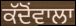
ਕੱਦੋਂਵਾਲਾ